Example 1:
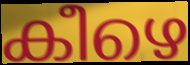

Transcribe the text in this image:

കീഴെ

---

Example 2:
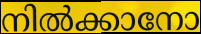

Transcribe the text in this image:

നിൽക്കാനോ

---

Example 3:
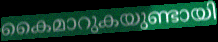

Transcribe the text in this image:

കൈമാറുകയുണ്ടായി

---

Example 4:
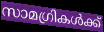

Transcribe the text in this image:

സാമഗ്രികൾക്ക്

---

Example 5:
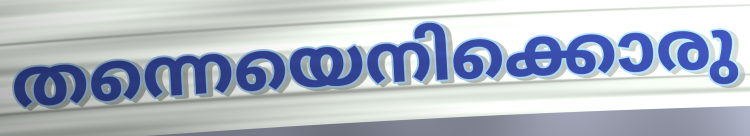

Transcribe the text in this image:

തന്നെയെനിക്കൊരു